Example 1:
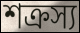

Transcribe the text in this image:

শক্রস্য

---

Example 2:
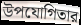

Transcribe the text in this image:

উপযোগিতার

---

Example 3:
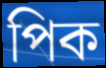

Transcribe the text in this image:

পিক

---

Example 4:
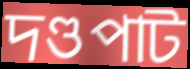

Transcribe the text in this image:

দণ্ডপাট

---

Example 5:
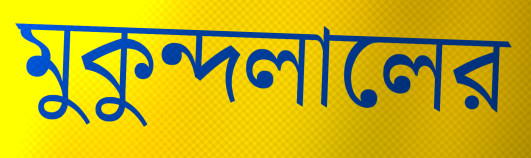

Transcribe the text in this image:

মুকুন্দলালের